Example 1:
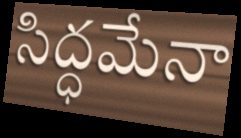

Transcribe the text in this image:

సిద్ధమేనా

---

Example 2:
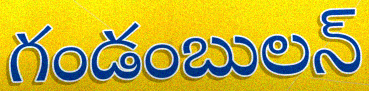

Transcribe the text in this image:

గండంబులన్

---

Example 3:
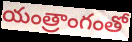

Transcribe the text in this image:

యంత్రాంగంతో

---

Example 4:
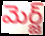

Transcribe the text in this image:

మెర్జ్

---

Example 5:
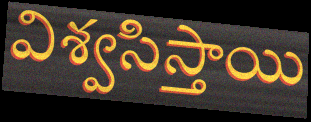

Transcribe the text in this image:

విశ్వసిస్తాయి